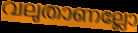
വലുതാണല്ലോ